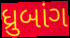
ધ્રુબાંગ